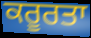
ਕਰੂਰਤਾ